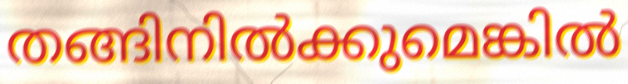
തങ്ങിനിൽക്കുമെങ്കിൽ